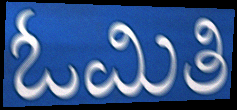
ಓಮಿತಿ